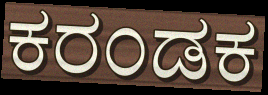
ಕರಂಡಕ